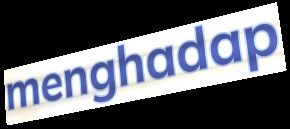
menghadap